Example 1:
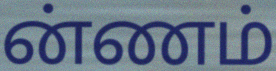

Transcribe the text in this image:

ன்ணம்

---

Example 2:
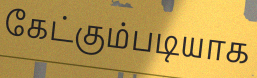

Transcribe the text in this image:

கேட்கும்படியாக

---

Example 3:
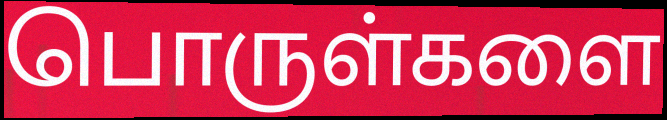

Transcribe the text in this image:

பொருள்களை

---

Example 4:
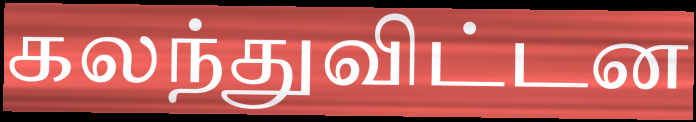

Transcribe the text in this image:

கலந்துவிட்டன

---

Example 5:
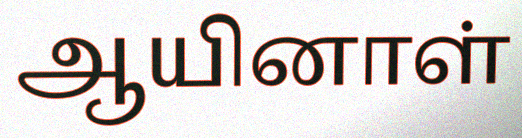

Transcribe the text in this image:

ஆயினாள்